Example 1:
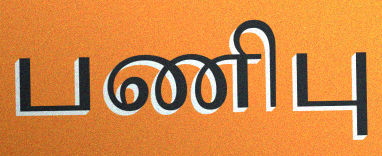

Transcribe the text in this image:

பணிபு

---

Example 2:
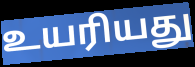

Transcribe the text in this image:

உயரியது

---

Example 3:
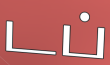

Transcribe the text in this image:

டப்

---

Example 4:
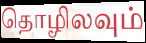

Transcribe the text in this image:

தொழிலவும்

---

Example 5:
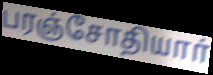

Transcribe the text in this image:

பரஞ்சோதியார்